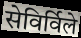
सेविर्विले